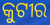
କୁଟୀର